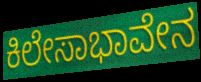
ಕಿಲೇಸಾಭಾವೇನ